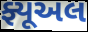
ફ્યૂઅલ